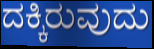
ದಕ್ಕಿರುವುದು